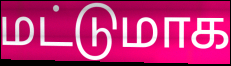
மட்டுமாக